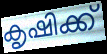
കൃഷിക്ക്